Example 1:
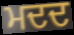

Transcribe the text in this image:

ਮਦਦ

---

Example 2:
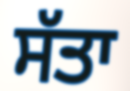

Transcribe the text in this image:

ਸੱਤਾ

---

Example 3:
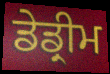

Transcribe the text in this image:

ਡੇਡ੍ਰੀਮ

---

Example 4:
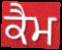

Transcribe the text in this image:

ਕੈਮ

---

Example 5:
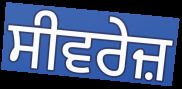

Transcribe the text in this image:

ਸੀਵਰੇਜ਼